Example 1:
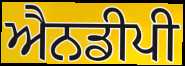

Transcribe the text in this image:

ਐਨਡੀਪੀ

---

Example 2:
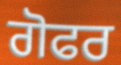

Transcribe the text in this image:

ਗੋਫਰ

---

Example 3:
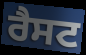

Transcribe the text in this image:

ਰੈਸਟ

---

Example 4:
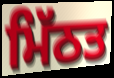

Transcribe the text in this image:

ਮਿੱਠਤ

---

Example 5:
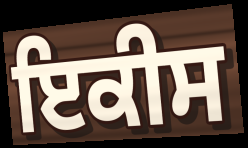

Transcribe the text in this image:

ਇਕੀਸ